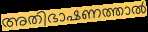
അതിഭാഷണത്താൽ